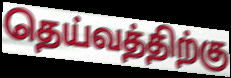
தெய்வத்திற்கு